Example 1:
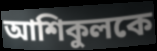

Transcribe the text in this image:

আশিকুলকে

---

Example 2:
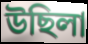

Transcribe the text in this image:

উছিলা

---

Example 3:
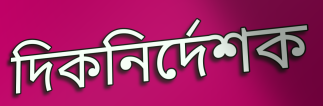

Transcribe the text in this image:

দিকনির্দেশক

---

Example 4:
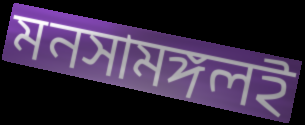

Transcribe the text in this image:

মনসামঙ্গলই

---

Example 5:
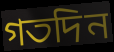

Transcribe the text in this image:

গতদিন